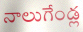
నాలుగేండ్ల